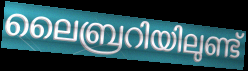
ലൈബ്രറിയിലുണ്ട്